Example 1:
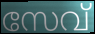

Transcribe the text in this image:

സേവ്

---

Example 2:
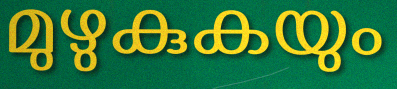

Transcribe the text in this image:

മുഴുകുകയും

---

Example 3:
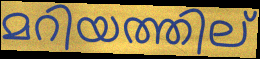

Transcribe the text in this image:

മറിയത്തില്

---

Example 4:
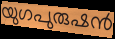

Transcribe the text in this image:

യുഗപുരുഷൻ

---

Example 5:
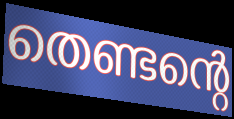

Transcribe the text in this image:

തെണ്ടന്റെ